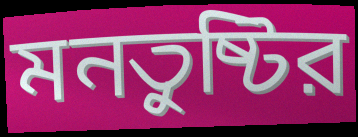
মনতুষ্টির